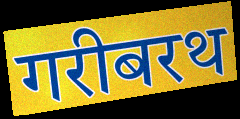
गरीबरथ